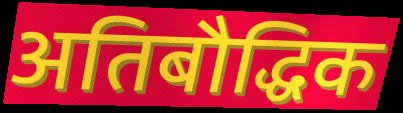
अतिबौद्धिक